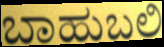
ಬಾಹುಬಲಿ